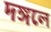
দঙ্গলে